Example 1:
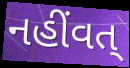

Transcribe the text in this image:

નહીંવત્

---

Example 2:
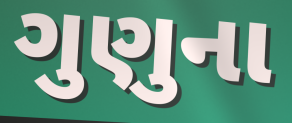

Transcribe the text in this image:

ગુણુના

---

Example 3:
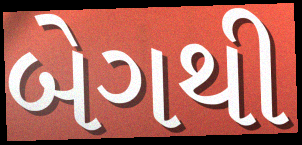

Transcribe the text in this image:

બેગથી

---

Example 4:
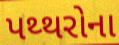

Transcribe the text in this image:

પથ્થરોના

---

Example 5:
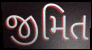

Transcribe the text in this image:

જીમિત